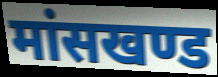
मांसखण्ड